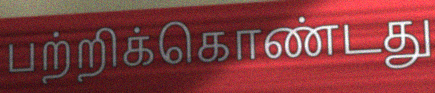
பற்றிக்கொண்டது